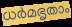
ധർമഭൃതാം